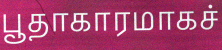
பூதாகாரமாகச்